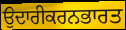
ਉਦਾਰੀਕਰਨਭਾਰਤ